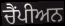
ਚੈਂਪੀਅਨ